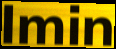
Imin